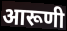
आरूणी